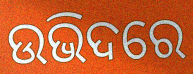
ଉଭିଦରେ